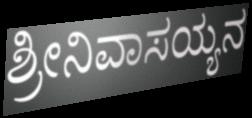
ಶ್ರೀನಿವಾಸಯ್ಯನ